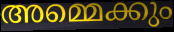
അമ്മെക്കും